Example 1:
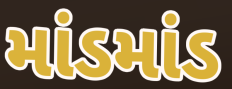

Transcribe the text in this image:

માંડમાંડ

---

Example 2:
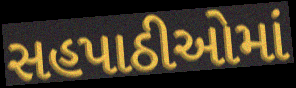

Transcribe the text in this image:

સહપાઠીઓમાં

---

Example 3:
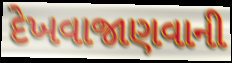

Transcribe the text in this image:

દેખવાજાણવાની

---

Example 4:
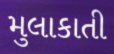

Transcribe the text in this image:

મુલાકાતી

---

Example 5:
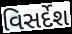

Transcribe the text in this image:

વિસર્દેશ